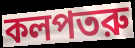
কলপতরু